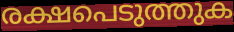
രക്ഷപെടുത്തുക